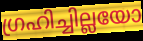
ഗ്രഹിച്ചില്ലയോ